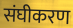
संघीकरण